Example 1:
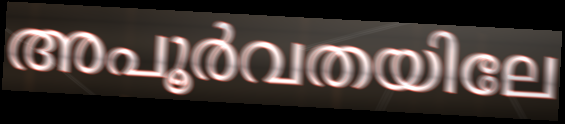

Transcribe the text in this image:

അപൂർവതയിലേ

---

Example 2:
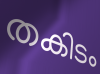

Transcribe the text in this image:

തകിടം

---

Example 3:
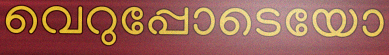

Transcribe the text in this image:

വെറുപ്പോടെയോ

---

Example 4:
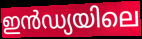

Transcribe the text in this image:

ഇൻഡ്യയിലെ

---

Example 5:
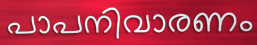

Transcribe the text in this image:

പാപനിവാരണം